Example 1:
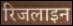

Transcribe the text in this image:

रिजलाइन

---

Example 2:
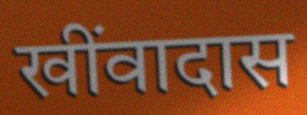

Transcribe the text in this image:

खींवादास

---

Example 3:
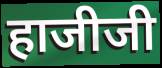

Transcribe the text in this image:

हाजीजी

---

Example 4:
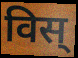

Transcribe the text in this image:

विस्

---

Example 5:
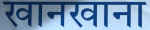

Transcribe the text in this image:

खानखाना